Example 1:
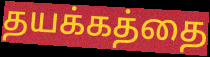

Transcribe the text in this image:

தயக்கத்தை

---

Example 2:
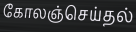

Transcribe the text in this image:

கோலஞ்செய்தல்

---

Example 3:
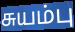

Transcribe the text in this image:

சுயம்பு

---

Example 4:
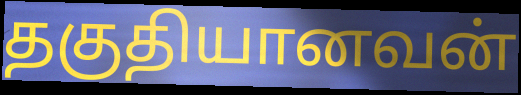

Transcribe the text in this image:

தகுதியானவன்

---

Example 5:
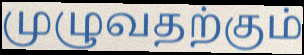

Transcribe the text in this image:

முழுவதற்கும்